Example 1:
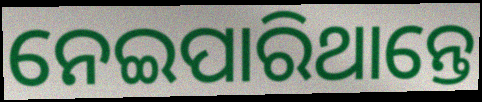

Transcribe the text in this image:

ନେଇପାରିଥାନ୍ତେ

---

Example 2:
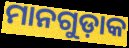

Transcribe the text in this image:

ମାନଗୁଡ଼ାକ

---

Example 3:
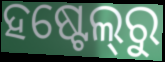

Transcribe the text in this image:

ହଷ୍ଟେଲ୍‍ରୁ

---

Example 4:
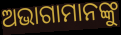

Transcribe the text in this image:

ଅଭାଗାମାନଙ୍କୁ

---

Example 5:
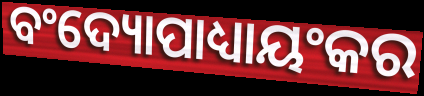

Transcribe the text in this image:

ବଂଦ୍ୟୋପାଧ୍ୟାୟଂକର